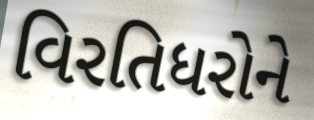
વિરતિધરોને